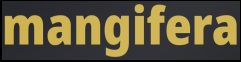
mangifera